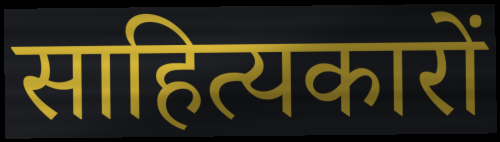
साहित्यकारों